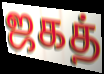
ஜகத்